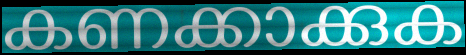
കണക്കാക്കുക